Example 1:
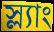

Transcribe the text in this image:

স্ল্যাং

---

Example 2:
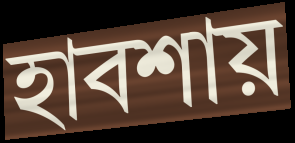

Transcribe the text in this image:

হাবশায়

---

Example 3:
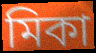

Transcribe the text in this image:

মিকা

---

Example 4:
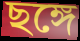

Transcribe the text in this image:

ছঙ্গে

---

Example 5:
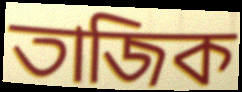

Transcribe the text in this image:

তাজিক